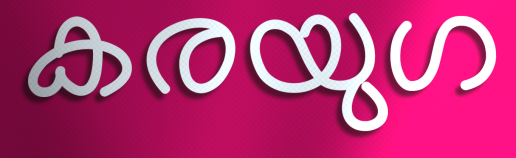
കരയുഗ